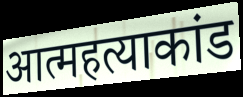
आत्महत्याकांड